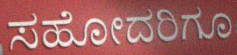
ಸಹೋದರಿಗೂ